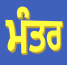
ਮੰਤਰ